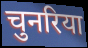
चुनरिया